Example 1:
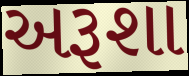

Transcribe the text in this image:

અરૂશા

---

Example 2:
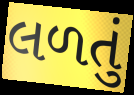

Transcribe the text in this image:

લળતું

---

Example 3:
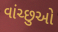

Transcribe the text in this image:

વાંચ્છુઓ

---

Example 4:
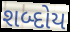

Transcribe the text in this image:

શબ્દોય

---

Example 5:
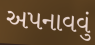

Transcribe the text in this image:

અપનાવવું